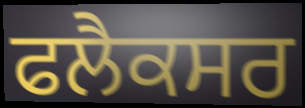
ਫਲੈਕਸਰ